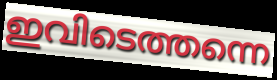
ഇവിടെത്തന്നെ